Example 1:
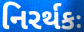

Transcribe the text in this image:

નિરર્થકઃ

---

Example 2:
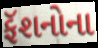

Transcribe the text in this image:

ફૅશનોના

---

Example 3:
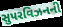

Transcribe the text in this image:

સુપરવિઝનની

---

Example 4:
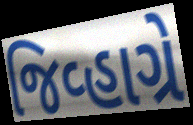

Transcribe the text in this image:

જિવ્હાગ્રે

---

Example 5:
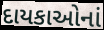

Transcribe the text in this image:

દાયકાઓનાં